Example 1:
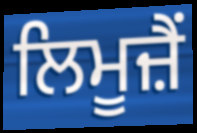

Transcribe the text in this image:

ਲਿਮੂਜ਼ੈਂ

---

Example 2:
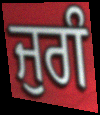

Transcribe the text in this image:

ਜੁਗੰ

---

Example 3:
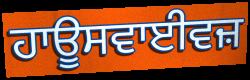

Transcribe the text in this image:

ਹਾਊਸਵਾਈਵਜ਼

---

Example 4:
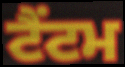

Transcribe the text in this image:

ਟੈਂਟਮ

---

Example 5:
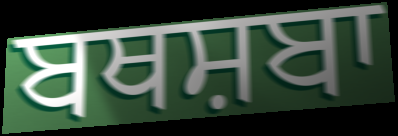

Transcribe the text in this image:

ਬਥਸ਼ਬਾ